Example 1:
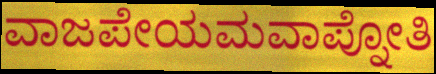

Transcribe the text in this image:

ವಾಜಪೇಯಮವಾಪ್ನೋತಿ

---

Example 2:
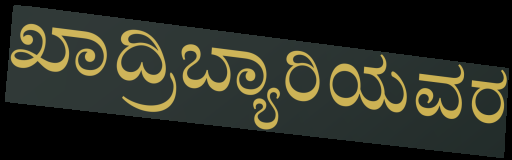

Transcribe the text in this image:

ಖಾದ್ರಿಬ್ಯಾರಿಯವರ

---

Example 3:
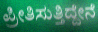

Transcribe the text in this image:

ಪ್ರೀತಿಸುತ್ತಿದ್ದೇನೆ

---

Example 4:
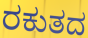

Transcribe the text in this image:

ರಕುತದ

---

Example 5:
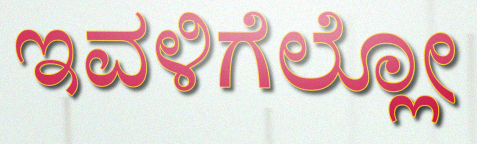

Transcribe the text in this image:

ಇವಳಿಗೆಲ್ಲೋ